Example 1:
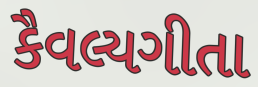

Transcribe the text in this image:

કૈવલ્યગીતા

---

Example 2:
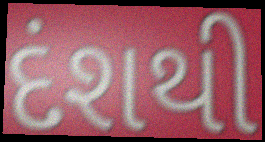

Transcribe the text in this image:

દંશથી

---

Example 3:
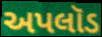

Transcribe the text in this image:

અપલૉડ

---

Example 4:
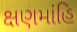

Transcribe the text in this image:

ક્ષણમાંહિ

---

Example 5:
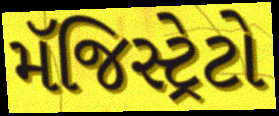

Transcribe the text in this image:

મૅજિસ્ટ્રેટો